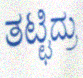
ತಟ್ಟಿದ್ರು